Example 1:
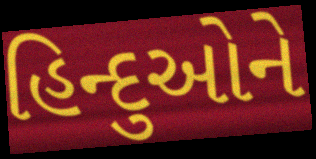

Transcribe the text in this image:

હિન્દુઓને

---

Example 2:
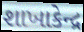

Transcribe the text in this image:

શાખાકેન્દ્ર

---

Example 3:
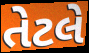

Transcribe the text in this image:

તેટલે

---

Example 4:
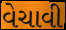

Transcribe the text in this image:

વેચાવી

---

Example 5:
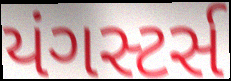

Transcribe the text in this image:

યંગસ્ટર્સ